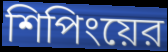
শিপিংয়ের